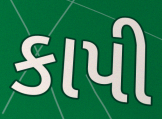
કાપી